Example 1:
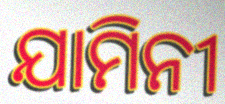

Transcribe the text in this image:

ଯାମିନୀ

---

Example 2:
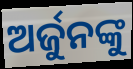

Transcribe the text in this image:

ଅର୍ଜୁନଙ୍କୁ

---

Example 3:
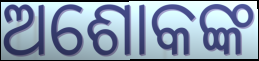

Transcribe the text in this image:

ଅଶୋକଙ୍କ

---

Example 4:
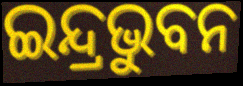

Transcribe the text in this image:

ଇନ୍ଦ୍ରଭୁବନ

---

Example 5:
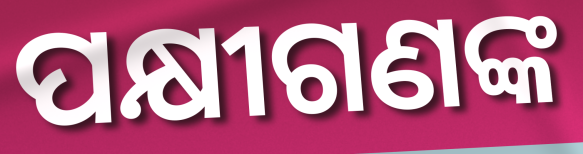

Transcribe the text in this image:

ପକ୍ଷୀଗଣଙ୍କ